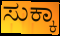
ಸುಕ್ಕಾ